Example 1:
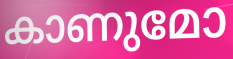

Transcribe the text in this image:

കാണുമോ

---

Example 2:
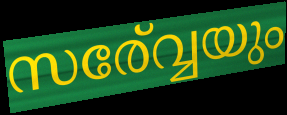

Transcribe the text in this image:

സര്വ്വേയും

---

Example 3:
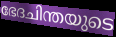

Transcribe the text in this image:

ഭേദചിന്തയുടെ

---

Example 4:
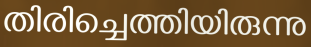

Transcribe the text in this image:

തിരിച്ചെത്തിയിരുന്നു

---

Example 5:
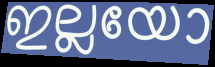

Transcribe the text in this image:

ഇല്ലയോ